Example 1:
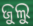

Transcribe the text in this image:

ଜୁଲୁ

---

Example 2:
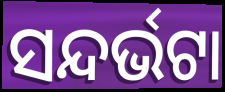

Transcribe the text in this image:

ସନ୍ଦର୍ଭଟା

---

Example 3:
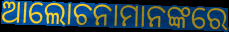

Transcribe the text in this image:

ଆଲୋଚନାମାନଙ୍କରେ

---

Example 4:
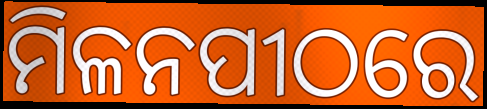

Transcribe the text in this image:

ମିଳନପୀଠରେ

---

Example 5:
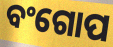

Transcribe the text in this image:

ବଂଗୋପ